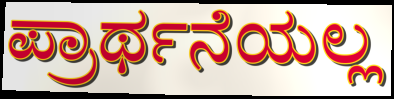
ಪ್ರಾರ್ಥನೆಯಲ್ಲ